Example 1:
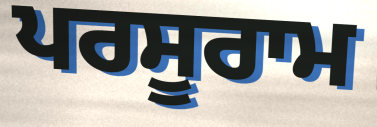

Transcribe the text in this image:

ਪਰਸੂਰਾਮ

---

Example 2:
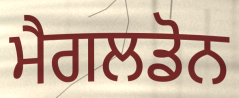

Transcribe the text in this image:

ਮੈਗਲਡੋਨ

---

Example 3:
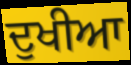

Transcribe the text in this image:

ਦੁਖੀਆ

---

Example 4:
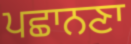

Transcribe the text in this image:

ਪਛਾਨਣਾ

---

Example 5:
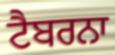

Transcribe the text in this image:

ਟੈਬਰਨਾ